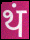
थं